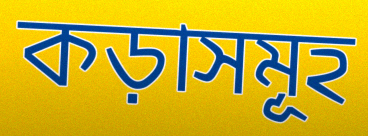
কড়াসমূহ